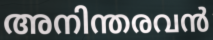
അനിന്തരവൻ